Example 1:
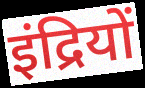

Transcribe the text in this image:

इंद्रियों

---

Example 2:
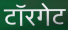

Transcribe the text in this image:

टॉरगेट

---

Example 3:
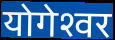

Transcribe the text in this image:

योगेश्वर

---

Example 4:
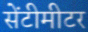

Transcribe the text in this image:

सेंटीमीटर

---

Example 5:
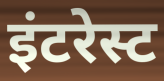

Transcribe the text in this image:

इंटरेस्ट